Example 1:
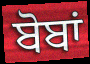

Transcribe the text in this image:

ਬੋਬਾਂ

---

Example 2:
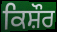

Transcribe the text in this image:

ਕਿਸ਼ੌਰ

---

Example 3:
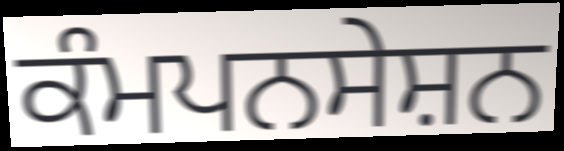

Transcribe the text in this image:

ਕੰਮਪਨਸੇਸ਼ਨ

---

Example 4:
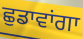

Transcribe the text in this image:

ਛੁਡਾਵਾਂਗਾ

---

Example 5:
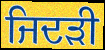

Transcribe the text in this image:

ਜਿਦੜੀ